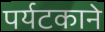
पर्यटकाने